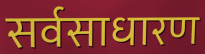
सर्वसाधारण